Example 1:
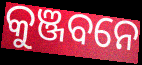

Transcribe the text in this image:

କୁଞ୍ଜବନେ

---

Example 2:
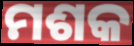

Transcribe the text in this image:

ମଶକ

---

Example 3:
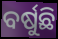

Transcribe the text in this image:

ବର୍ଷୁଛି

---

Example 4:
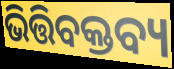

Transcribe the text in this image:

ଭିତ୍ତିବକ୍ତବ୍ୟ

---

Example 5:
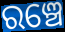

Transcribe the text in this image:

ରଞ୍ଚେ